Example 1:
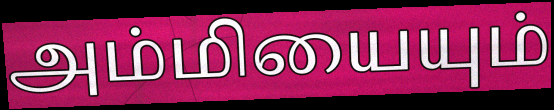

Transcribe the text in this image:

அம்மியையும்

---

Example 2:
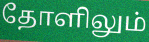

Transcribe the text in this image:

தோளிலும்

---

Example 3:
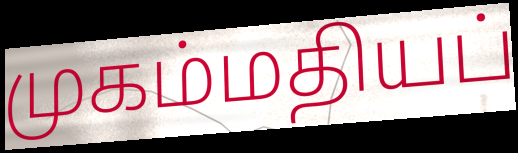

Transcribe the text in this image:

முகம்மதியப்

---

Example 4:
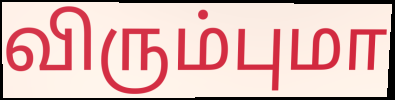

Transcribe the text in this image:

விரும்புமா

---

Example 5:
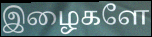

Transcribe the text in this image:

இழைகளே